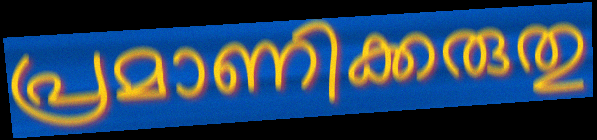
പ്രമാണിക്കരുതു